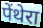
पेंथेरा